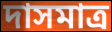
দাসমাত্র